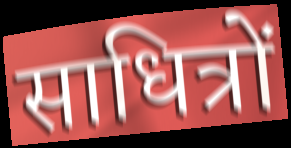
साधित्रों